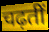
चढ़तीं